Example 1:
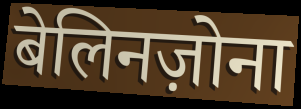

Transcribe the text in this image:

बेलिनज़ोना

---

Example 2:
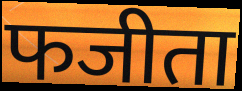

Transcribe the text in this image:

फजीता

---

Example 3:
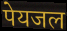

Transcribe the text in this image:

पेयजल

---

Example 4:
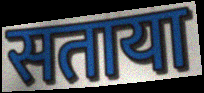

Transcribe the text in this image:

सताया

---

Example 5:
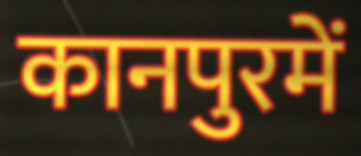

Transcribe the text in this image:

कानपुरमें